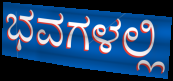
ಭವಗಳಲ್ಲಿ